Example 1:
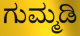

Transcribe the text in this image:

ಗುಮ್ಮಡಿ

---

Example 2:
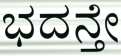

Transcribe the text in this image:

ಭದನ್ತೇ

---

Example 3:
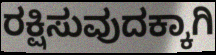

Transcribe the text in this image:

ರಕ್ಷಿಸುವುದಕ್ಕಾಗಿ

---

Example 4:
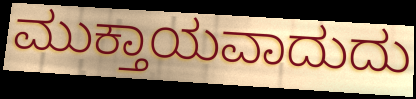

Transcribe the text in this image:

ಮುಕ್ತಾಯವಾದುದು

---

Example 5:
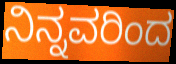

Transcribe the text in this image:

ನಿನ್ನವರಿಂದ